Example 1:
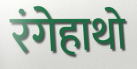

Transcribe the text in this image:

रंगेहाथो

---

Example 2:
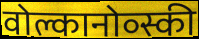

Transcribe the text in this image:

वोल्कानोव्स्की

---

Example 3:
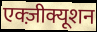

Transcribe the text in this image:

एक्ज़ीक्यूशन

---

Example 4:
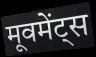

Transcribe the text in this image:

मूवमेंट्स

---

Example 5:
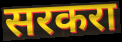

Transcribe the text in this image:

सरकरा